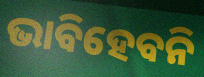
ଭାବିହେବନି